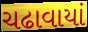
ચઢાવાયાં